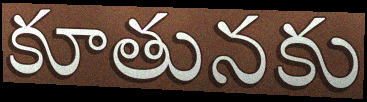
కూతునకు